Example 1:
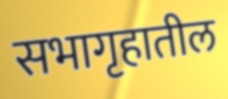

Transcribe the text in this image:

सभागृहातील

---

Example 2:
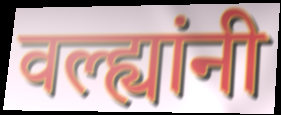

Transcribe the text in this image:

वल्ह्यांनी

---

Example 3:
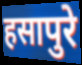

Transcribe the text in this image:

हसापुरे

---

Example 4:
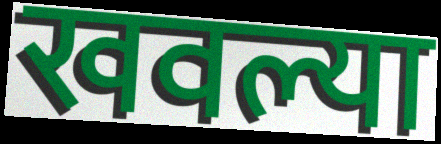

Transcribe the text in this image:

खवल्या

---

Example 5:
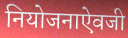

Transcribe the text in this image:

नियोजनाऐवजी